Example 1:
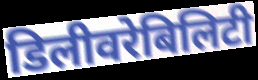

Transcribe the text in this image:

डिलीवरेबिलिटी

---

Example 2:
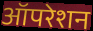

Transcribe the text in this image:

ऑपरेशन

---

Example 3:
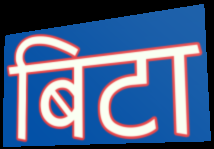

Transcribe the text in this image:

बिटा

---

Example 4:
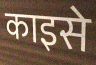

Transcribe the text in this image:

काइसे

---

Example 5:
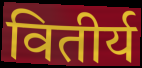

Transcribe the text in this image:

वितीर्य